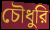
চৌধুরি